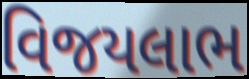
વિજયલાભ